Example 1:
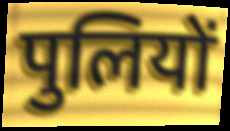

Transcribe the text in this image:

पुलियों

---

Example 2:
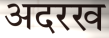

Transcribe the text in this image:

अदरख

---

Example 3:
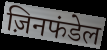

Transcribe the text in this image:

ज़िनफंडेल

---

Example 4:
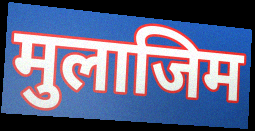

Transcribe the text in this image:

मुलाजिम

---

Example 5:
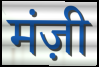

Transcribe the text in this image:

मंज़ी